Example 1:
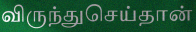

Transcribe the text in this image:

விருந்துசெய்தான்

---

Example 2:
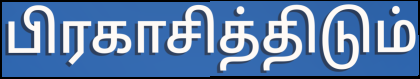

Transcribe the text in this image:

பிரகாசித்திடும்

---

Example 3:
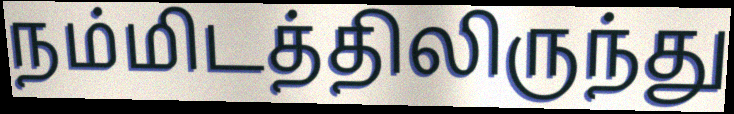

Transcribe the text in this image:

நம்மிடத்திலிருந்து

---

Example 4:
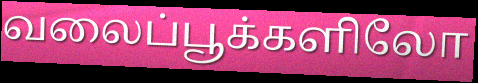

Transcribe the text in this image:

வலைப்பூக்களிலோ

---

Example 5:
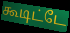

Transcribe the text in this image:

கூடிட்டே